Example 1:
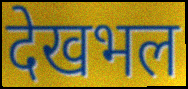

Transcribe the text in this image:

देखभल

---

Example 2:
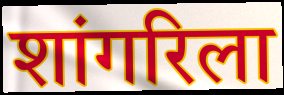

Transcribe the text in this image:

शांगरिला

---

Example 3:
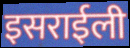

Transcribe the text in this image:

इसराईली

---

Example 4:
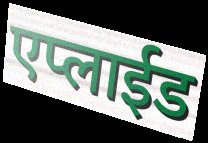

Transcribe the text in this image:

एप्लाईड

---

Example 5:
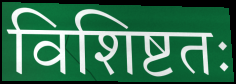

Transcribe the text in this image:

विशिष्टतः